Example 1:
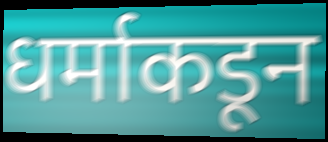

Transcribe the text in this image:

धर्माकडून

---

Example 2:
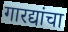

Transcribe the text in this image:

गारद्यांचा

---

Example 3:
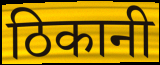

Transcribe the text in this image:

ठिकानी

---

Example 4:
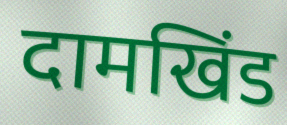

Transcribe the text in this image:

दामखिंड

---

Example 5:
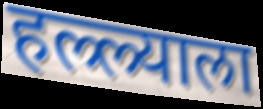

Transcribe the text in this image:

हल्ल्याला